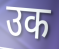
उक